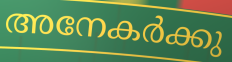
അനേകർക്കു